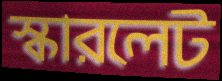
স্কারলেট